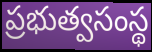
ప్రభుత్వసంస్థ